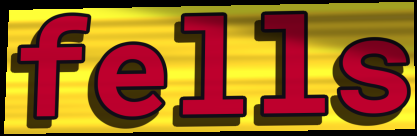
fells